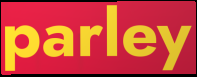
parley